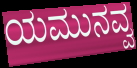
ಯಮುನವ್ವ